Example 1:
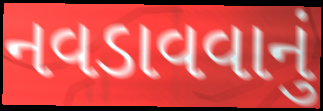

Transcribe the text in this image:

નવડાવવાનું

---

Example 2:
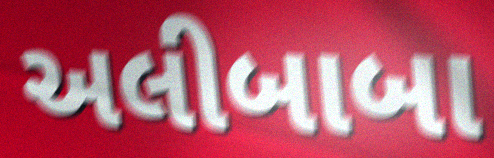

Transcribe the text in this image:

અલીબાબા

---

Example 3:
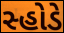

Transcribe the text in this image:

સ્હોડે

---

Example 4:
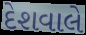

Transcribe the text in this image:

દેશવાલે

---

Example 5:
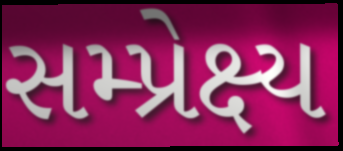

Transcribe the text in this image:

સમ્પ્રેક્ષ્ય